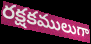
రక్షకములుగా